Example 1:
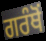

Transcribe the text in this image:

ਗਰੰਥੋਂ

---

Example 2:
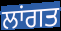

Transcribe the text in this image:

ਲਾਂਗਤ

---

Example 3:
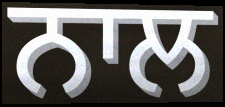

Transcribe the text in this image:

ਨਾਲ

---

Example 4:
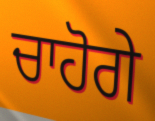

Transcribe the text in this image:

ਚਾਹੋਗੇ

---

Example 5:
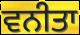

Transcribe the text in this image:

ਵਨੀਤਾ